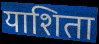
याशिता